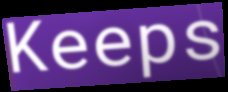
Keeps